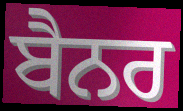
ਬੈਨਰ